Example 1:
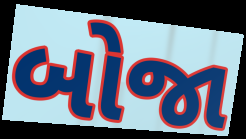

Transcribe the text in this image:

બોજા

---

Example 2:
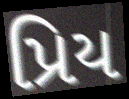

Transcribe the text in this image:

પ્રિય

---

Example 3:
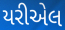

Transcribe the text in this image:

યરીએલ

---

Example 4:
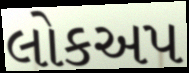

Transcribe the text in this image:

લોકઅપ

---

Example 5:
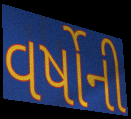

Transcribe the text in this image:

વર્ષોની